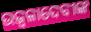
ଉଜ୍ୱଳାଦେବୀଙ୍କ